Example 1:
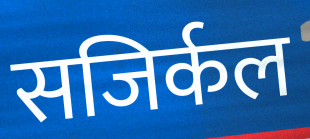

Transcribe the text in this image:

सजिर्कल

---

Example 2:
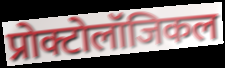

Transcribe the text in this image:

प्रोक्टोलॉजिकल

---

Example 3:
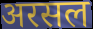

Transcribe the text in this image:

अरसल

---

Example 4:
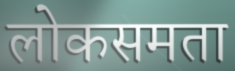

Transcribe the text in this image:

लोकसमता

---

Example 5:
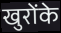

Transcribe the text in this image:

खुरोंके